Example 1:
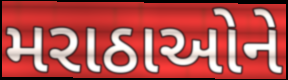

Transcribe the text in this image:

મરાઠાઓને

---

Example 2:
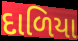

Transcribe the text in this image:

દાળિયા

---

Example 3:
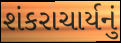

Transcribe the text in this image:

શંકરાચાર્યનું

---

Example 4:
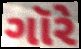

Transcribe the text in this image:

ગૉરે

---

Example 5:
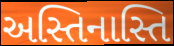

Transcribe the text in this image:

અસ્તિનાસ્તિ